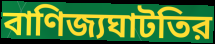
বাণিজ্যঘাটতির